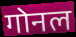
गोनल